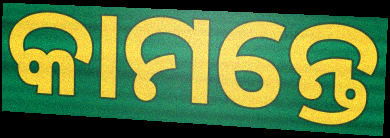
କାମନ୍ତେ